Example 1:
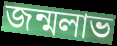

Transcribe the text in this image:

জন্মলাভ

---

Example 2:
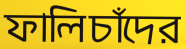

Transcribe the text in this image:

ফালিচাঁদের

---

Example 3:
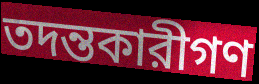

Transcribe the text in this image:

তদন্তকারীগণ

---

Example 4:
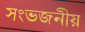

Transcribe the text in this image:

সংভজনীয়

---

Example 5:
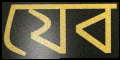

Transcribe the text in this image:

যেব